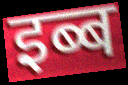
इब्ब